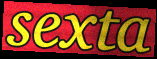
sexta